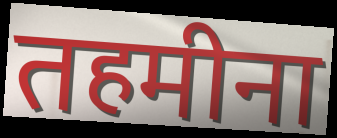
तहमीना